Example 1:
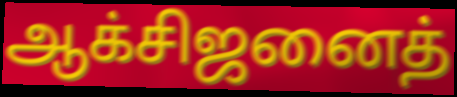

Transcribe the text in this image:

ஆக்சிஜனைத்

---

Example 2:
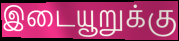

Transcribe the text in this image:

இடையூறுக்கு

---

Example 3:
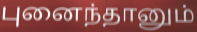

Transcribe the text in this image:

புனைந்தானும்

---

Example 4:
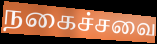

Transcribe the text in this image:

நகைச்சவை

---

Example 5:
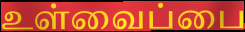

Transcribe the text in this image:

உள்வைப்பை